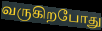
வருகிறபோது